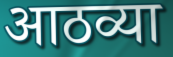
आठव्या